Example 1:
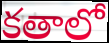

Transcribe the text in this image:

కతాలో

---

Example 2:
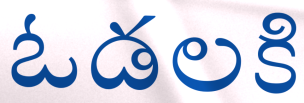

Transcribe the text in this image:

ఓడలకి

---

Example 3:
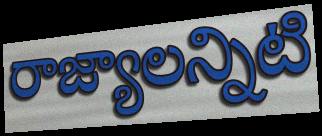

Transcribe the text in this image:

రాజ్యాలన్నిటి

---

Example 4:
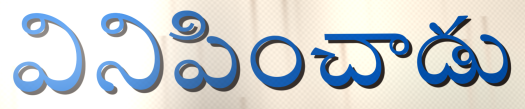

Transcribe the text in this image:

వినిపించాడు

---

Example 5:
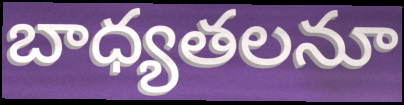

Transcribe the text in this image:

బాధ్యతలనూ